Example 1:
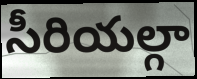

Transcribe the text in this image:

సీరియల్గా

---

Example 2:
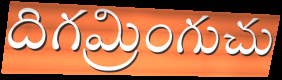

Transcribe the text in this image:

దిగమ్రింగుచు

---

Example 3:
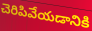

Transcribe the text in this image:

చెరిపివేయడానికి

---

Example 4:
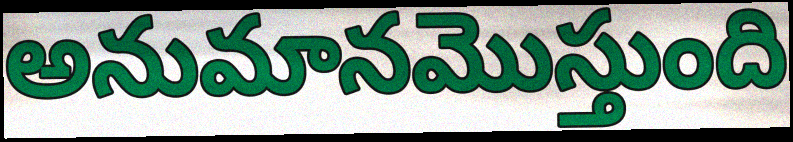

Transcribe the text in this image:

అనుమానమొస్తుంది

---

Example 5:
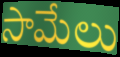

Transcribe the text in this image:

సామేలు